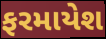
ફરમાયેશ